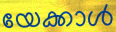
യേക്കാൾ